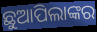
ଛୁଆପିଲାଙ୍କର